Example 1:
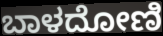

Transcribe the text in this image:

ಬಾಳದೋಣಿ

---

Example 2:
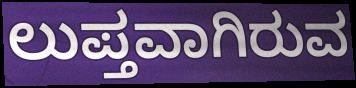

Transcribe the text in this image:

ಲುಪ್ತವಾಗಿರುವ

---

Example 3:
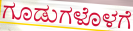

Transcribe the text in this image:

ಗೂಡುಗಳೊಳಗೆ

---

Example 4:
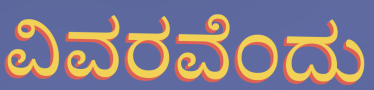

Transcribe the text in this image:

ವಿವರವೆಂದು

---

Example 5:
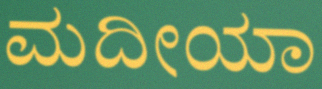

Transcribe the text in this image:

ಮದೀಯಾ